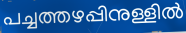
പച്ചത്തഴപ്പിനുള്ളിൽ